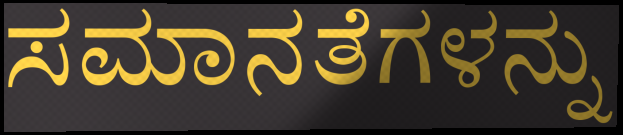
ಸಮಾನತೆಗಳನ್ನು